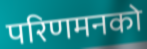
परिणमनको